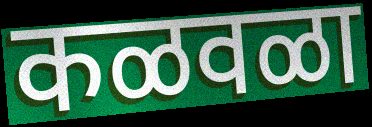
कळवळा